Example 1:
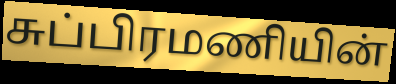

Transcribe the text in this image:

சுப்பிரமணியின்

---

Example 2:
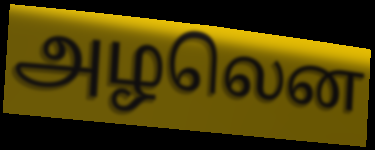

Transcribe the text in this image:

அழலென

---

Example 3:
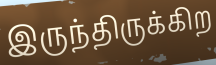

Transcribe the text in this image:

இருந்திருக்கிற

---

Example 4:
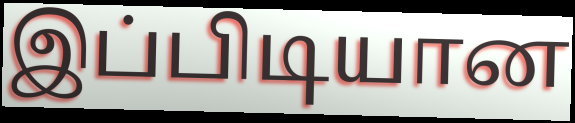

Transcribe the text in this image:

இப்பிடியான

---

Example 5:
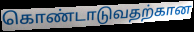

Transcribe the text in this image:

கொண்டாடுவதற்கான